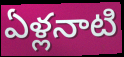
ఏళ్లనాటి